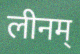
लीनम्